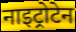
नाइट्रोटेन